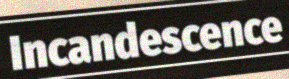
Incandescence